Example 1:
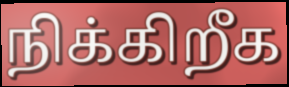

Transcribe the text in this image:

நிக்கிறீக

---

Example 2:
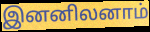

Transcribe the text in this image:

இனனிலனாம்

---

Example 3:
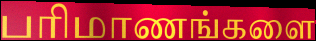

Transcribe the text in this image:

பரிமாணங்களை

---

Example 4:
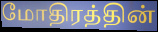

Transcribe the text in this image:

மோதிரத்தின்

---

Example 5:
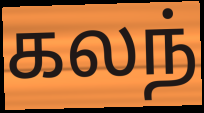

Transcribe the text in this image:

கலந்